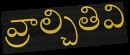
వ్రాల్చితివి